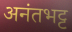
अनंतभट्ट